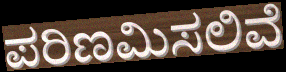
ಪರಿಣಮಿಸಲಿವೆ